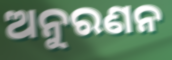
ଅନୁରଣନ